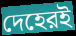
দেহেরই